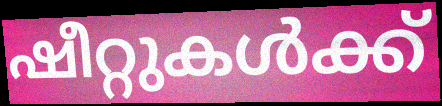
ഷീറ്റുകൾക്ക്